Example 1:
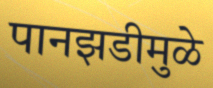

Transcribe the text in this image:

पानझडीमुळे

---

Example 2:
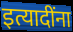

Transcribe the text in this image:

इत्यादींना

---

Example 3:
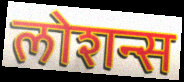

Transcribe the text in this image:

लोशन्स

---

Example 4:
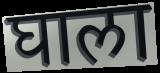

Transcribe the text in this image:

घाला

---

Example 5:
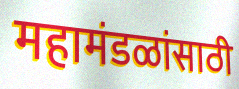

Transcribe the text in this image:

महामंडळांसाठी